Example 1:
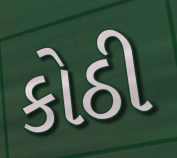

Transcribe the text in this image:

કોઠી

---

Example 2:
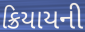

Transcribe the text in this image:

ક્રિયાયની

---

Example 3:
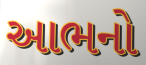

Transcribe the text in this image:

આભનો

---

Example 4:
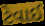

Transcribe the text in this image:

ટેવાઈ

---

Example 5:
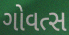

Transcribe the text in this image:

ગોવત્સ